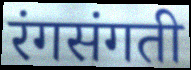
रंगसंगती